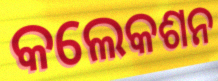
କଲେକଶନ